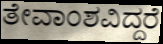
ತೇವಾಂಶವಿದ್ದರೆ